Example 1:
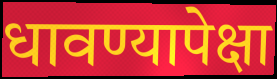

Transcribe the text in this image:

धावण्यापेक्षा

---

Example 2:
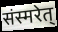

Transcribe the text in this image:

संस्मरेत्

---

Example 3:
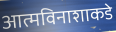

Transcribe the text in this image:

आत्मविनाशाकडे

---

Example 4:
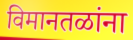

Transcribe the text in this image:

विमानतळांना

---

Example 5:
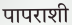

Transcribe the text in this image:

पापराशी